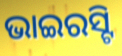
ଭାଇରସ୍ଟି